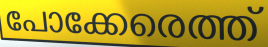
പോക്കേരെത്ത്